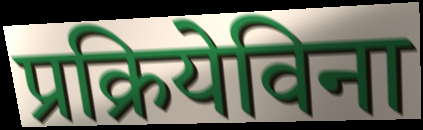
प्रक्रियेविना